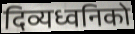
दिव्यध्वनिको